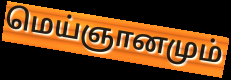
மெய்ஞானமும்